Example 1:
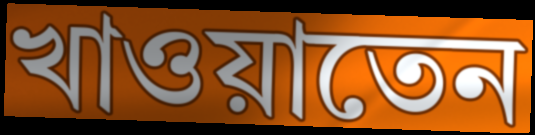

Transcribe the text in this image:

খাওয়াতেন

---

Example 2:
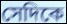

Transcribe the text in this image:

সেদিকে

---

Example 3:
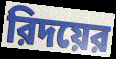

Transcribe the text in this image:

রিদয়ের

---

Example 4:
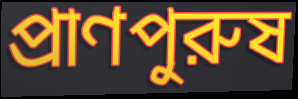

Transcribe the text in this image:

প্রাণপুরুষ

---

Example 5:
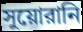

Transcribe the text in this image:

সুয়োরানি